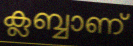
ക്ലബ്ബാണ്